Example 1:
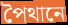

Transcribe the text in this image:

পৈথানে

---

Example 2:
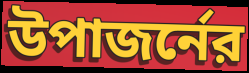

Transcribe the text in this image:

উপাজর্নের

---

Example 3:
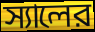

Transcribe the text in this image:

স্যালের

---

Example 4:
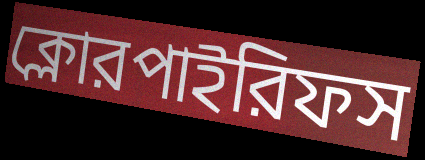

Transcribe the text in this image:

ক্লোরপাইরিফস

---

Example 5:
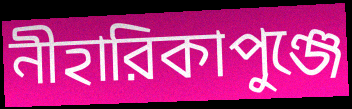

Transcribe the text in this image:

নীহারিকাপুঞ্জে